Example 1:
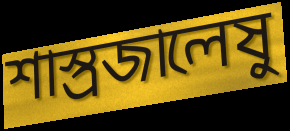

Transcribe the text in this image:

শাস্ত্রজালেষু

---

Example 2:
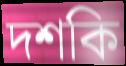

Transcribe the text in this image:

দশকি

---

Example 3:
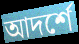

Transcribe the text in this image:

আদর্শে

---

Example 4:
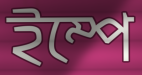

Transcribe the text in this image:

ইম্পে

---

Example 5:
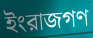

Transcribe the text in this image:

ইংরাজগণ